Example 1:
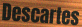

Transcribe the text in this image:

Descartes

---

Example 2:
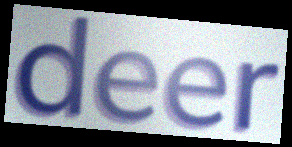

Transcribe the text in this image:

deer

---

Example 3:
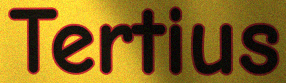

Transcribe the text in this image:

Tertius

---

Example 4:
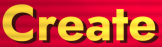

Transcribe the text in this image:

Create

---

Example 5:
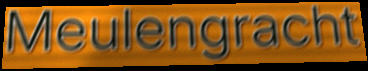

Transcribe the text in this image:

Meulengracht